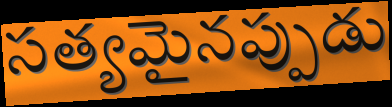
సత్యమైనప్పుడు